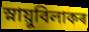
স্নায়ুবিলাকৰ